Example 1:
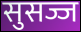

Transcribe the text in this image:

सुसज्ज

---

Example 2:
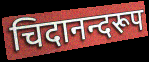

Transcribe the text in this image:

चिदानन्दरूप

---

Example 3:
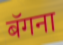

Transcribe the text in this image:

बॅगना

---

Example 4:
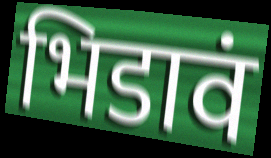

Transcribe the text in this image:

भिडावं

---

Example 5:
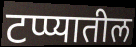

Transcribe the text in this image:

टप्प्यातील